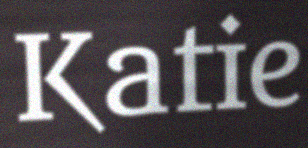
Katie